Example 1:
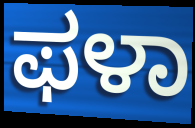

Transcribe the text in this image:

ಫಳಾ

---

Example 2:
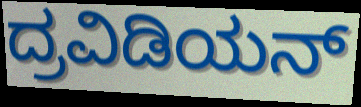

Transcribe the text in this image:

ದ್ರವಿಡಿಯನ್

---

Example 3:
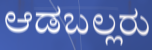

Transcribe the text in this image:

ಆಡಬಲ್ಲರು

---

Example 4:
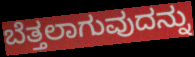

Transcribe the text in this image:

ಬೆತ್ತಲಾಗುವುದನ್ನು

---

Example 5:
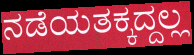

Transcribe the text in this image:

ನಡೆಯತಕ್ಕದ್ದಲ್ಲ